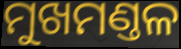
ମୁଖମଣ୍ତଳ